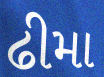
ઢીમા